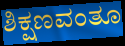
ಶಿಕ್ಷಣವಂತೂ